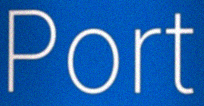
Port